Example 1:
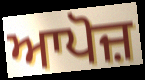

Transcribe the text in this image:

ਆਪੋਜ਼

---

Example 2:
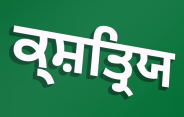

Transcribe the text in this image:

ਕ੍ਸ਼ਤ੍ਰਿਯ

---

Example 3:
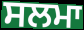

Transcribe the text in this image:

ਸਲਮਾ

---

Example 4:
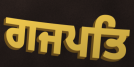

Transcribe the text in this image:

ਗਜਪਤਿ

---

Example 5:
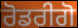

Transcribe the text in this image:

ਰੋਡਰੀਗੋ